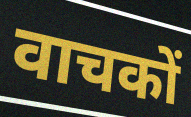
वाचकों